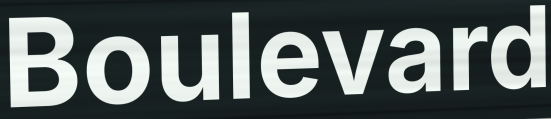
Boulevard